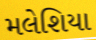
મલેશિયા